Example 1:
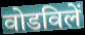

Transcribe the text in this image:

वोडविलें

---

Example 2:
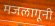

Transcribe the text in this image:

मजलागूनी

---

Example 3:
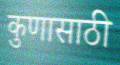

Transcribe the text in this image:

कुणासाठी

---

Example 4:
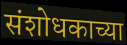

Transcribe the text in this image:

संशोधकाच्या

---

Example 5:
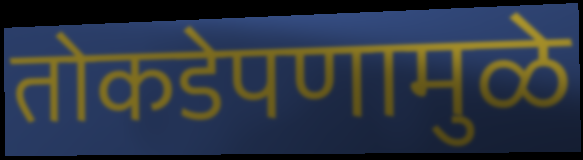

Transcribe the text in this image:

तोकडेपणामुळे